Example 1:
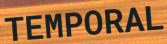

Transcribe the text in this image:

TEMPORAL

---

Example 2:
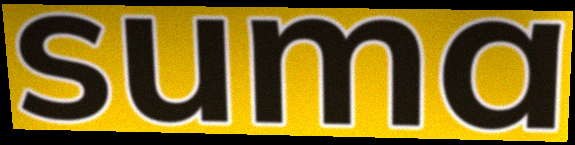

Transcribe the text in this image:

suma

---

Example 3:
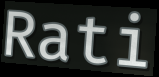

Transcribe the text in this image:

Rati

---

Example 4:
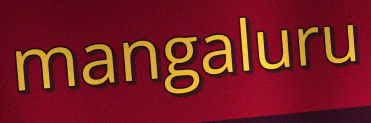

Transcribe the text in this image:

mangaluru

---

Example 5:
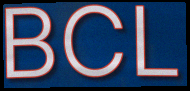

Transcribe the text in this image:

BCL